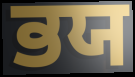
ਭਯ